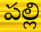
పల్లి